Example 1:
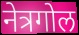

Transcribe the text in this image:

नेत्रगोल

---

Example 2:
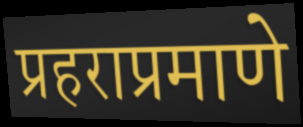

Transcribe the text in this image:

प्रहराप्रमाणे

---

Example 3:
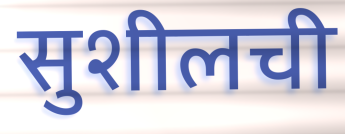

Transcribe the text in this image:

सुशीलची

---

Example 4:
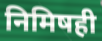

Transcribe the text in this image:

निमिषही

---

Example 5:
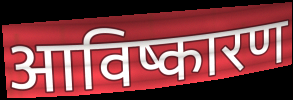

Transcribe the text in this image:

आविष्कारण